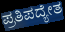
ಪ್ರತಿಪದ್ಯೇತ